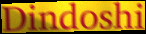
Dindoshi